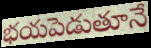
భయపెడుతూనే